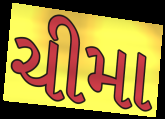
ચીમા